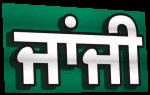
ਜਾਂਜੀ